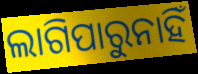
ଲାଗିପାରୁନାହିଁ